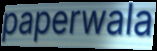
paperwala